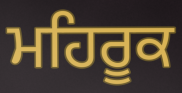
ਮਹਿਰੂਕ